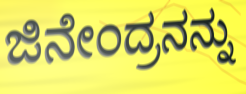
ಜಿನೇಂದ್ರನನ್ನು